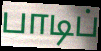
பாடிப்